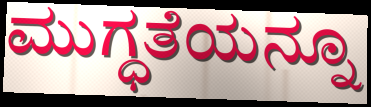
ಮುಗ್ಧತೆಯನ್ನೂ